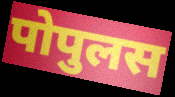
पोपुलस